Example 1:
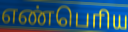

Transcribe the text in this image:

எண்பெரிய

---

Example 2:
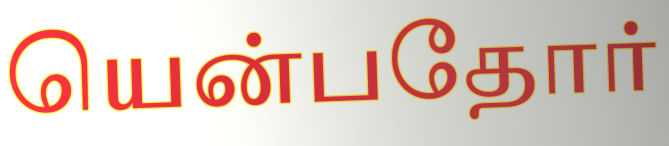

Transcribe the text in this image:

யென்பதோர்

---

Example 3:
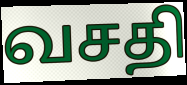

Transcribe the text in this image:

வசதி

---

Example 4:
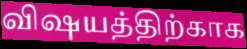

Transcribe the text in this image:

விஷயத்திற்காக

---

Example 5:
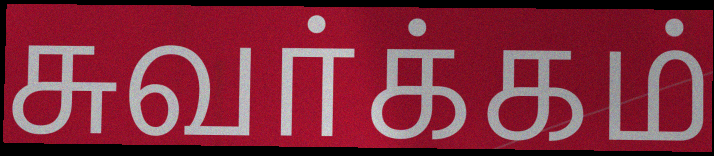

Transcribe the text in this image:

சுவர்க்கம்